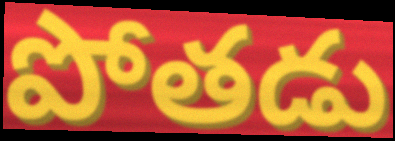
పోతడు